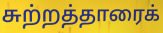
சுற்றத்தாரைக்